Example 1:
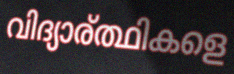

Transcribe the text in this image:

വിദ്യാര്ത്ഥികളെ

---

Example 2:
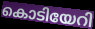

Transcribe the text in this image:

കൊടിയേറി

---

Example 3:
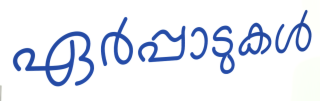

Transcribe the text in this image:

ഏർപ്പാടുകൾ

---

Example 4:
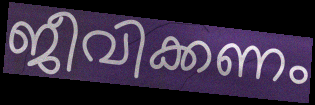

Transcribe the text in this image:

ജീവിക്കണം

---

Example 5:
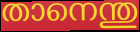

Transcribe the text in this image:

താനെന്തു